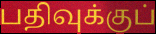
பதிவுக்குப்